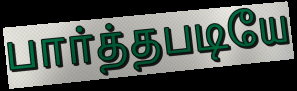
பார்த்தபடியே